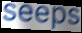
seeps